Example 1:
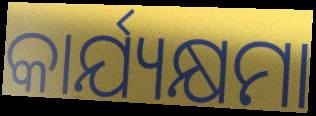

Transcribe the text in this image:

କାର୍ଯ୍ୟକ୍ଷମା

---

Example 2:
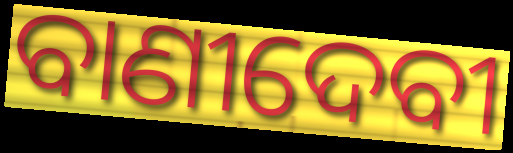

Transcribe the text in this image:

ବାଣୀଦେବୀ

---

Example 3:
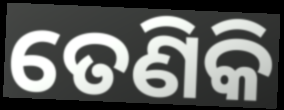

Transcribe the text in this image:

ତେଣିକି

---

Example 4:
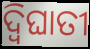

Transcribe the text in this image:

ଦ୍ବିଘାତୀ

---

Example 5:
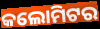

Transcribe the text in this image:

କଲୋମିଟର